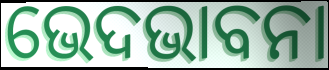
ଭେଦଭାବନା